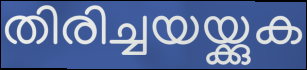
തിരിച്ചയയ്ക്കുക